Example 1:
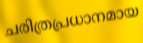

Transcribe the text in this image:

ചരിത്രപ്രധാനമായ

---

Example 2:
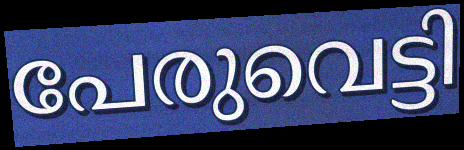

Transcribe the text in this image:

പേരുവെട്ടി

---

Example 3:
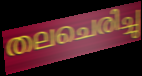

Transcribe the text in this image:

തലചെരിച്ചു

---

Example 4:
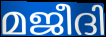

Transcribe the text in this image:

മജീദി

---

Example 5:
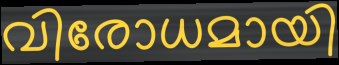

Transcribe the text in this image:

വിരോധമായി